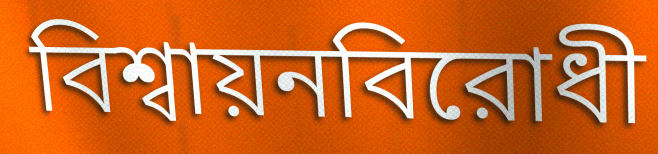
বিশ্বায়নবিরোধী